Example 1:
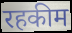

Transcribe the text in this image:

रहकीम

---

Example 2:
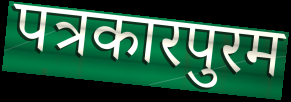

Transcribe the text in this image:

पत्रकारपुरम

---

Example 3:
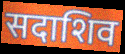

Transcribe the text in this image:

सदाशिव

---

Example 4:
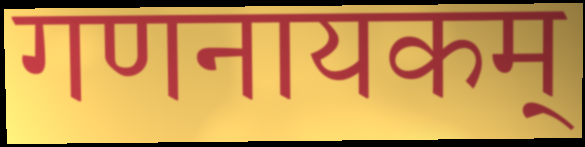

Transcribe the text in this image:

गणनायकम्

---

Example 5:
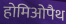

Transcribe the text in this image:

होमिओपैथ